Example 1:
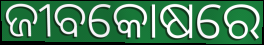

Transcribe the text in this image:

ଜୀବକୋଷରେ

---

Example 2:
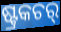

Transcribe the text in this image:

ଷ୍ଟ୍ରକଚର୍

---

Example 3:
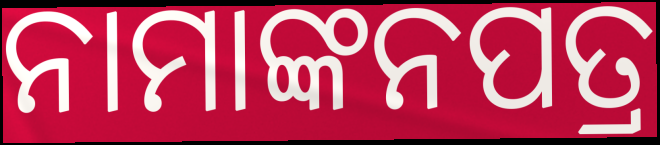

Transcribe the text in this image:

ନାମାଙ୍କନପତ୍ର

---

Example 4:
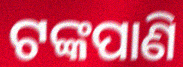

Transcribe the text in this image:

ଟଙ୍କପାଣି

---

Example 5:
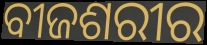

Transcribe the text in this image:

ବୀଜଶରୀର